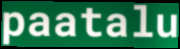
paatalu